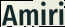
Amiri